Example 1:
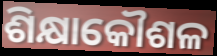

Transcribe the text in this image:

ଶିକ୍ଷାକୌଶଳ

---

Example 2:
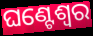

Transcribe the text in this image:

ଘଣ୍ଟେଶ୍ୱର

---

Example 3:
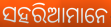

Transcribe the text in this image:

ସହରିଆମାନେ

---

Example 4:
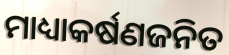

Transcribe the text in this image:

ମାଧ୍ୟାକର୍ଷଣଜନିତ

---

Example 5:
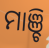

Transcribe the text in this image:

ମାଞ୍ଚି